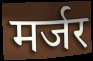
मर्जर